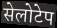
सेलोटेप